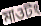
মাওটং